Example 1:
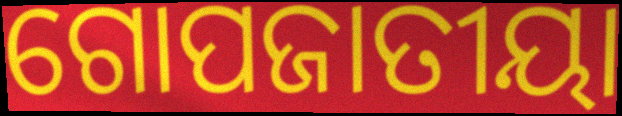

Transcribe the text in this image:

ଗୋପଜାତୀୟା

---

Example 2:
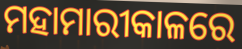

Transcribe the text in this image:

ମହାମାରୀକାଳରେ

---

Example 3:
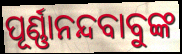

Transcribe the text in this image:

ପୂର୍ଣ୍ଣାନନ୍ଦବାବୁଙ୍କ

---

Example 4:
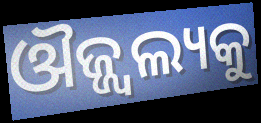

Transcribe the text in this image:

ଔଜ୍ଜ୍ଵଲ୍ୟକୁ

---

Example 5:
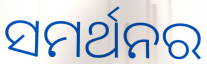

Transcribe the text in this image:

ସମର୍ଥନର